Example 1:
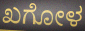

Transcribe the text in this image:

ಖಗೋಳ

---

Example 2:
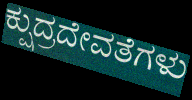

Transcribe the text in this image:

ಕ್ಷುದ್ರದೇವತೆಗಳು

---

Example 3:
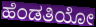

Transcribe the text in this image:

ಹೆಂಡತಿಯೋ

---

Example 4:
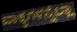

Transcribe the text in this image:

ವಾಕ್ಯಗಳನ್ನೆಲ್ಲಾ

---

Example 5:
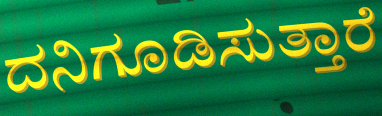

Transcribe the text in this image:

ದನಿಗೂಡಿಸುತ್ತಾರೆ